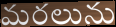
మరలును